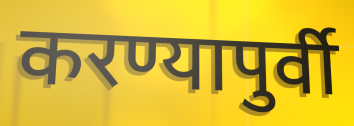
करण्यापुर्वी